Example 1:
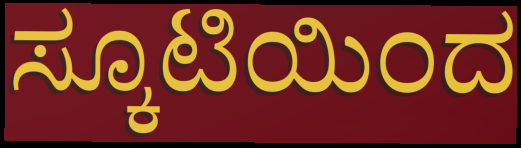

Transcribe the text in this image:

ಸ್ಕೂಟಿಯಿಂದ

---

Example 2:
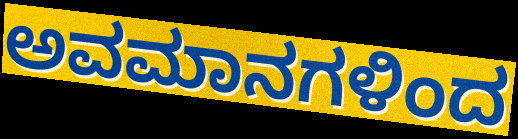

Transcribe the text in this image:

ಅವಮಾನಗಳಿಂದ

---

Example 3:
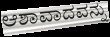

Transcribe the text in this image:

ಆಶಾವಾದವನ್ನು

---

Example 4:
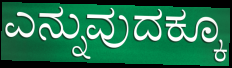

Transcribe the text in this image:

ಎನ್ನುವುದಕ್ಕೂ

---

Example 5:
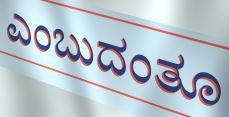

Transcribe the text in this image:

ಎಂಬುದಂತೂ